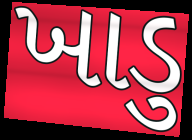
ખાડુ